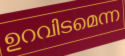
ഉറവിടമെന്ന